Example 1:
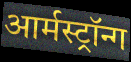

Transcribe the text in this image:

आर्मस्ट्रॉन्ग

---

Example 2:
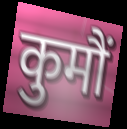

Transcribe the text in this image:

कुमौं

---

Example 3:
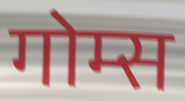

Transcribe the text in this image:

गोम्स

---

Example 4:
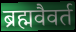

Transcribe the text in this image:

ब्रह्मवैवर्त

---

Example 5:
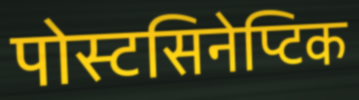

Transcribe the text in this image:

पोस्टसिनेप्टिक